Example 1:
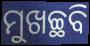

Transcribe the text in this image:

ମୁଖଚ୍ଛବି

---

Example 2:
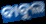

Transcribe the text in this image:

ବାବୁଲ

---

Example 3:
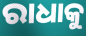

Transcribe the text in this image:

ରାଧାକୁ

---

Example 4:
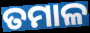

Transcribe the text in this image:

ତମାଳ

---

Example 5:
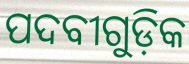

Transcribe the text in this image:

ପଦବୀଗୁଡ଼ିକ